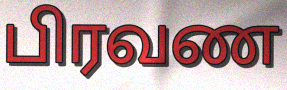
பிரவண